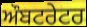
ਔਬਟਰੇਟਰ